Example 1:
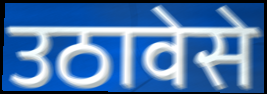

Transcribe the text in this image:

उठावेसे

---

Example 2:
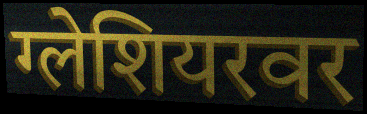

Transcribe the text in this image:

ग्लेशियरवर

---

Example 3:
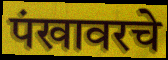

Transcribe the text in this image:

पंखावरचे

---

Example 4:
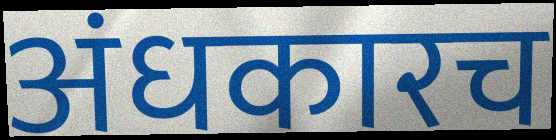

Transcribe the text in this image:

अंधकारच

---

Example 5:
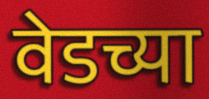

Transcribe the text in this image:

वेडच्या